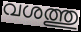
വശത്തു